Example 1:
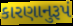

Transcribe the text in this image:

કારણાનુરૂપં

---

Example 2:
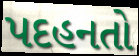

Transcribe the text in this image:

પદહનતો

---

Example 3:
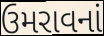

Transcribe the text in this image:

ઉમરાવનાં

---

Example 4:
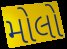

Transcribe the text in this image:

મોલો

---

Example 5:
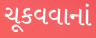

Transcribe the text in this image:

ચૂકવવાનાં